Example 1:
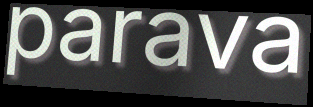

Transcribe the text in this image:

parava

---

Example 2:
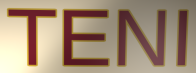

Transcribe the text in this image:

TENI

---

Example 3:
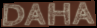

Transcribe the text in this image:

DAHA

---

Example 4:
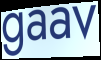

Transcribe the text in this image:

gaav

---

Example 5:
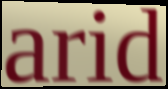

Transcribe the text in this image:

arid